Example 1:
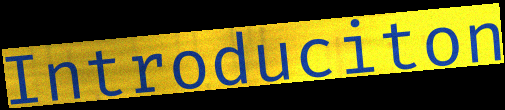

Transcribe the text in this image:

Introduciton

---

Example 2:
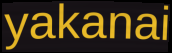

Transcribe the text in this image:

yakanai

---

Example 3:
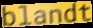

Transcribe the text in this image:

blandt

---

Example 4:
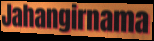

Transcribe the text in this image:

Jahangirnama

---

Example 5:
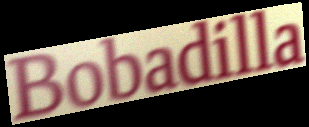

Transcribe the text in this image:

Bobadilla